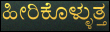
ಹೀರಿಕೊಳ್ಳುತ್ತ